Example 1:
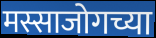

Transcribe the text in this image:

मस्साजोगच्या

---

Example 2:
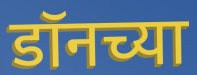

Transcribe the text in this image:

डॉनच्या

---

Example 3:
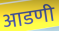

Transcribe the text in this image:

आडणी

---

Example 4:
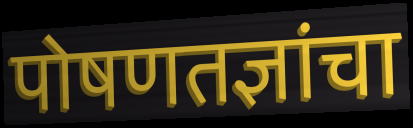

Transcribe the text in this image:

पोषणतज्ञांचा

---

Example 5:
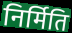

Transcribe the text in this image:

निर्मिति